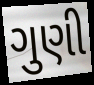
ગુણી